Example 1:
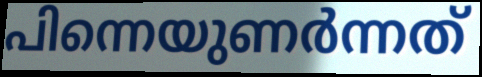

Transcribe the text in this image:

പിന്നെയുണർന്നത്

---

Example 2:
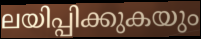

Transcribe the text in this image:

ലയിപ്പിക്കുകയും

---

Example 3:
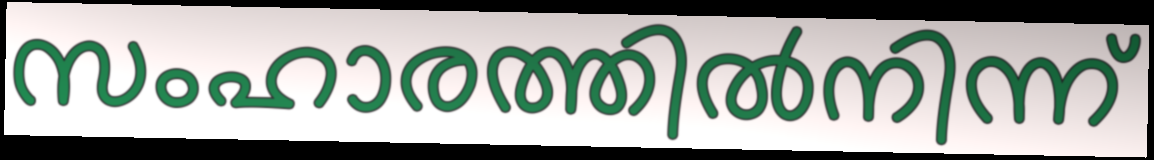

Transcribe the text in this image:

സംഹാരത്തിൽനിന്ന്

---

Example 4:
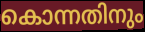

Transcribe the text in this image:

കൊന്നതിനും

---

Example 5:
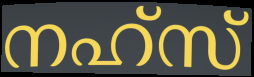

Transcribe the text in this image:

നഹ്സ്